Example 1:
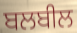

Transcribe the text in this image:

ਬਲਬੀਲ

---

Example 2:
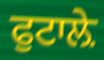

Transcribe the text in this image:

ਫੁਟਾਲ਼ੇ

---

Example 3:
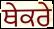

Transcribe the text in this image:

ਥੇਕਰੇ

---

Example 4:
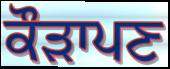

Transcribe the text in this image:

ਕੌੜਾਪਣ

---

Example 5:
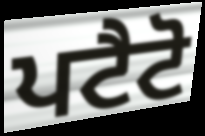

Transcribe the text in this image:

ਪਟੈਟੋ